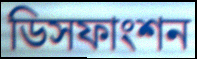
ডিসফাংশন